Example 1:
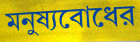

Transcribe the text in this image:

মনুষ্যবোধের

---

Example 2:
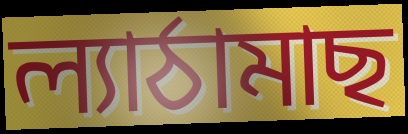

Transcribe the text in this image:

ল্যাঠামাছ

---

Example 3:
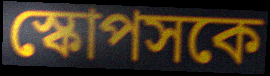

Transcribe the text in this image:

স্কোপসকে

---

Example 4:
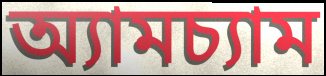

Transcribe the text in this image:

অ্যামচ্যাম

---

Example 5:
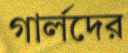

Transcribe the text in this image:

গার্লদের